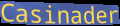
Casinader